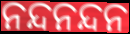
ନନ୍ଦନନ୍ଦନ